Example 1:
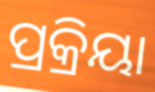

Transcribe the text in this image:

ପ୍ରକ୍ରିୟା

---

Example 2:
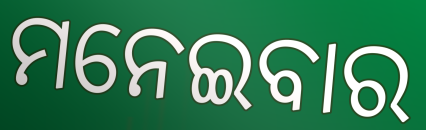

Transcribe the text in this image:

ମନେଇବାର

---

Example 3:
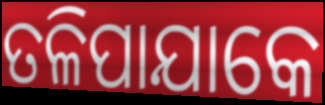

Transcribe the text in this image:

ତଳିପାଯାକେ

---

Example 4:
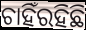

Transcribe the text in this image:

ଚାହିଁରହିଛି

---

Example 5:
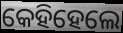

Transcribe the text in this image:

କେହିହେଲେ